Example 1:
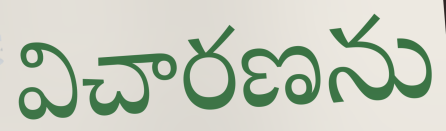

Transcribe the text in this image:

విచారణను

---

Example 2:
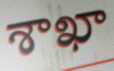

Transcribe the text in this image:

శాఖా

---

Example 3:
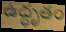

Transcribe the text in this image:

ఉద్ధృతం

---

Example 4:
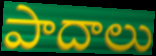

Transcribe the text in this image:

పాదాలు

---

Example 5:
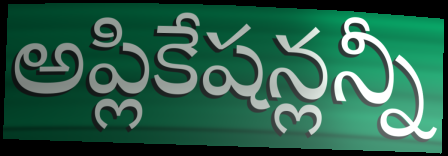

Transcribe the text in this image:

అప్లికేషన్లన్నీ